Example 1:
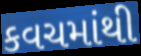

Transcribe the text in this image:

કવચમાંથી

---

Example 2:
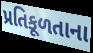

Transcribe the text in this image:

પ્રતિકૂળતાના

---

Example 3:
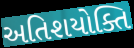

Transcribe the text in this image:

અતિશયોક્તિ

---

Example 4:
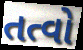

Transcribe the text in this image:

તત્વો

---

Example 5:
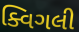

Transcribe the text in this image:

ક્વિગલી